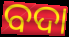
ବଦା